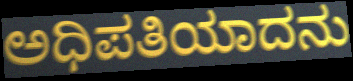
ಅಧಿಪತಿಯಾದನು